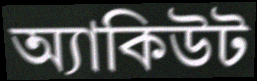
অ্যাকিউট